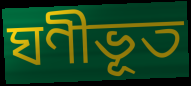
ঘণীভূত